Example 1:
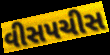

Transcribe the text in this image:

વીસપચીસ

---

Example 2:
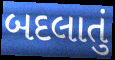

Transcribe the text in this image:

બદલાતું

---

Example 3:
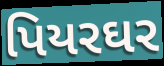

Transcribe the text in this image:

પિયરઘર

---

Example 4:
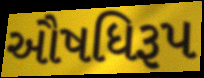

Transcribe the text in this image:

ઔષધિરૂપ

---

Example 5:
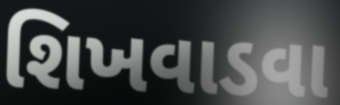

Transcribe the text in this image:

શિખવાડવા